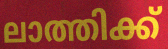
ലാത്തിക്ക്